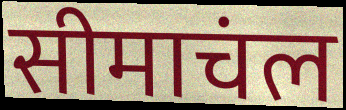
सीमाचंल